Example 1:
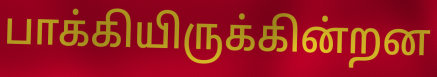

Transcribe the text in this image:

பாக்கியிருக்கின்றன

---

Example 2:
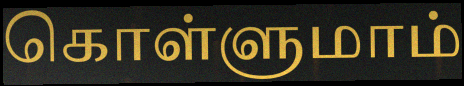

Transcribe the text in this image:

கொள்ளுமாம்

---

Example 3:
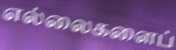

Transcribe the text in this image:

எல்லைகளைப்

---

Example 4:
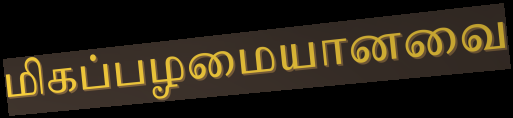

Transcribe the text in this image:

மிகப்பழமையானவை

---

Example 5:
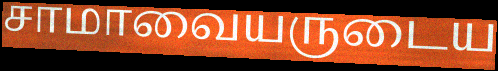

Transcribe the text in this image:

சாமாவையருடைய